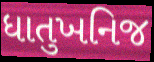
ધાતુખનિજ